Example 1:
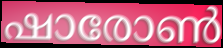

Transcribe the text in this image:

ഷാരോൺ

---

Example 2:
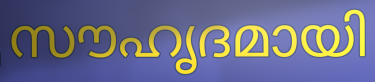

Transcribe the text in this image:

സൗഹൃദമായി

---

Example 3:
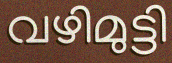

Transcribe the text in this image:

വഴിമുട്ടി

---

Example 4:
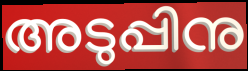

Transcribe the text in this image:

അടുപ്പിനു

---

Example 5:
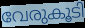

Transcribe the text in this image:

വേരുകൂടി